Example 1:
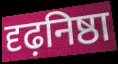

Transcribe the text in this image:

दृढ़निष्ठा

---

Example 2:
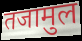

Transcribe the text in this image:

तजामुल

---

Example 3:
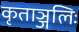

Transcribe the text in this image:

कृताञ्जलिः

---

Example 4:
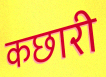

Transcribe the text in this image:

कछारी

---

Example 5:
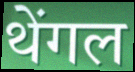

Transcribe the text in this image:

थेंगल